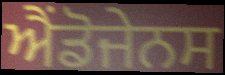
ਐਂਡੋਜੇਨਸ